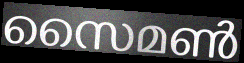
സൈമൺ